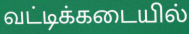
வட்டிக்கடையில்